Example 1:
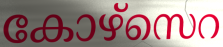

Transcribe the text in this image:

കോഴ്സെറ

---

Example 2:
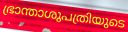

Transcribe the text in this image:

ഭ്രാന്താശുപത്രിയുടെ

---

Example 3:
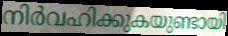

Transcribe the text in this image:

നിർവഹിക്കുകയുണ്ടായി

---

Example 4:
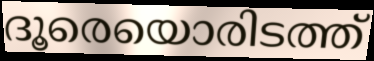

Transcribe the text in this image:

ദൂരെയൊരിടത്ത്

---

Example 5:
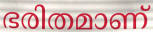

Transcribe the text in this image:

ഭരിതമാണ്